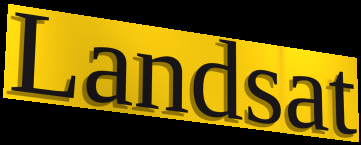
Landsat